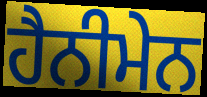
ਹੈਨੀਮੇਨ